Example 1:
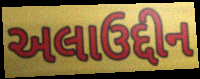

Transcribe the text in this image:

અલાઉદ્દીન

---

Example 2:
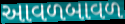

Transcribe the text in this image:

આવળબાવળ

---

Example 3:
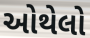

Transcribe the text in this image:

ઓથેલો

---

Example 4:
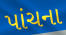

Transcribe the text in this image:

પાંચના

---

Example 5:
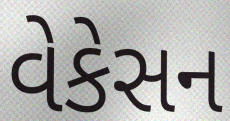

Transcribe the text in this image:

વેકેસન